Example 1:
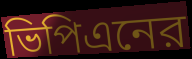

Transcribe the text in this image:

ভিপিএনের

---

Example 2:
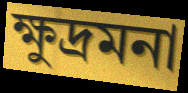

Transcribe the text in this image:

ক্ষুদ্রমনা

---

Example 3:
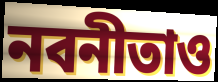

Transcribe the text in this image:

নবনীতাও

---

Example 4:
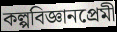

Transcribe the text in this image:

কল্পবিজ্ঞানপ্রেমী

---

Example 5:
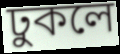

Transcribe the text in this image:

ঢুকলে